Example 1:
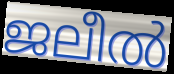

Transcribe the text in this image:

ജലീൽ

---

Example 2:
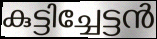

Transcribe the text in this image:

കുട്ടിച്ചേട്ടൻ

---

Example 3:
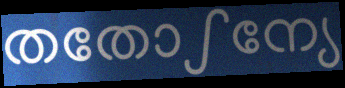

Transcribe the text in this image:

തതോഽന്യേ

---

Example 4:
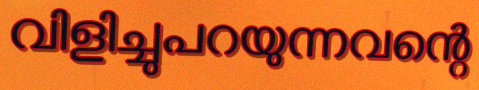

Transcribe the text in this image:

വിളിച്ചുപറയുന്നവന്റെ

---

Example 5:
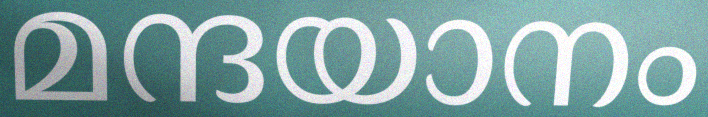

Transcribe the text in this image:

മന്ദയാനം